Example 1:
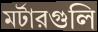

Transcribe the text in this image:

মর্টারগুলি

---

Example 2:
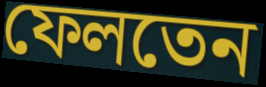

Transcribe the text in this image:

ফেলতেন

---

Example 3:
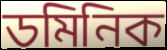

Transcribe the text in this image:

ডমিনিক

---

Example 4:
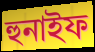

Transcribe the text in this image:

হুনাইফ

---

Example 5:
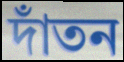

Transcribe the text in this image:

দাঁতন